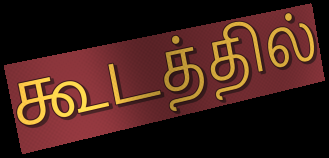
கூடத்தில்